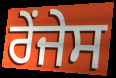
ਰੇਂਜੇਸ